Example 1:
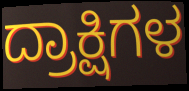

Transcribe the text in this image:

ದ್ರಾಕ್ಷಿಗಳ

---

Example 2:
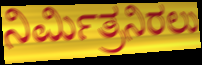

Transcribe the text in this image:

ನಿರ್ಮಿತ್ರನಿರಲು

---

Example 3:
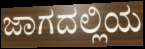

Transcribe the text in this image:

ಜಾಗದಲ್ಲಿಯ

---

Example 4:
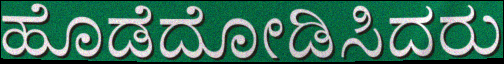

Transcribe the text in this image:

ಹೊಡೆದೋಡಿಸಿದರು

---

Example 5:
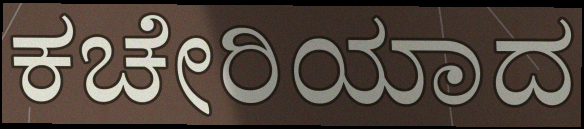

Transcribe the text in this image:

ಕಚೇರಿಯಾದ